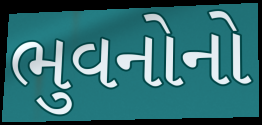
ભુવનોનો